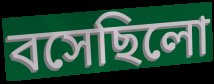
বসেছিলো